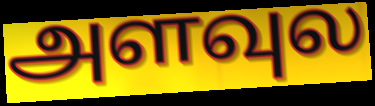
அளவுல